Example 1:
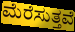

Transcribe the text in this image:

ಮೆರೆಸುತ್ತವೆ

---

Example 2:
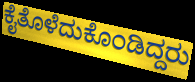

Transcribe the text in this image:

ಕೈತೊಳೆದುಕೊಂಡಿದ್ದರು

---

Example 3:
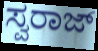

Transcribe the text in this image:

ಸ್ವರಾಜ್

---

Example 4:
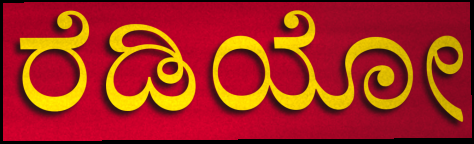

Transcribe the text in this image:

ರೆಡಿಯೋ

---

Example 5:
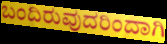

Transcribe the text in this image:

ಬಂದಿರುವುದರಿಂದಾಗಿ